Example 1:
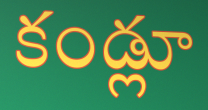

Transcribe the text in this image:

కండ్లూ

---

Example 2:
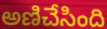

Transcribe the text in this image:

అణిచేసింది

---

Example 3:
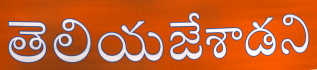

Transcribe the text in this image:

తెలియజేశాడని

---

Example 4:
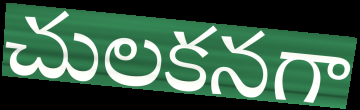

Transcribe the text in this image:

చులకనగా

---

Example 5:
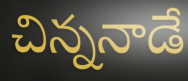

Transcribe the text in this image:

చిన్ననాడే